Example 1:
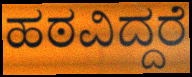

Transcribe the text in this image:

ಹಠವಿದ್ದರೆ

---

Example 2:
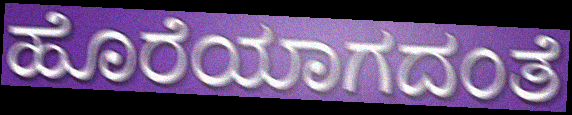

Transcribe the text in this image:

ಹೊರೆಯಾಗದಂತೆ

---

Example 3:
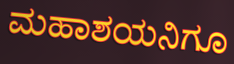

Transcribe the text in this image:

ಮಹಾಶಯನಿಗೂ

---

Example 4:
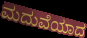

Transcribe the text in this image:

ಮದುವೆಯಾದ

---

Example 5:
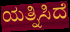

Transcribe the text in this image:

ಯತ್ನಿಸಿದೆ